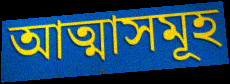
আত্মাসমূহ